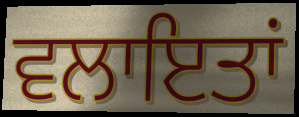
ਵਲਾਇਤਾਂ